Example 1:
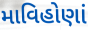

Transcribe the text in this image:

માવિહોણાં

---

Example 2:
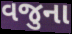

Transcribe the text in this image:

વજુના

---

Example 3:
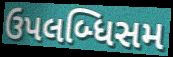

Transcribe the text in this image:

ઉપલબ્ધિસમ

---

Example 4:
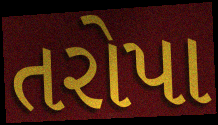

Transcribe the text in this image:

તરોપા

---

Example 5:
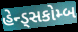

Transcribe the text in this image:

હેન્ડ્સકોમ્બ